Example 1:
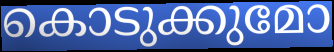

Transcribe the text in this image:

കൊടുക്കുമോ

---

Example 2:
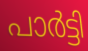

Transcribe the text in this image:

പാർട്ടി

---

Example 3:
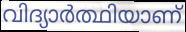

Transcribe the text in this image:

വിദ്യാർത്ഥിയാണ്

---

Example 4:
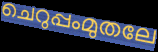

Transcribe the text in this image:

ചെറുപ്പംമുതലേ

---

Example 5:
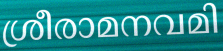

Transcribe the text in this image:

ശ്രീരാമനവമി